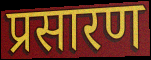
प्रसारण